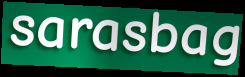
sarasbag